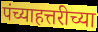
पंच्याहत्तरीच्या